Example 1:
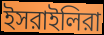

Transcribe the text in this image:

ইসরাইলিরা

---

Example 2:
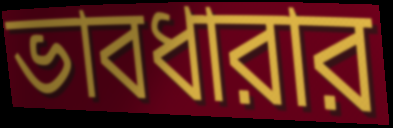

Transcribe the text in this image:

ভাবধারার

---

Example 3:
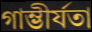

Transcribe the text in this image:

গাম্ভীর্যতা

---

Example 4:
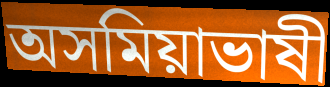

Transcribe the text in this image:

অসমিয়াভাষী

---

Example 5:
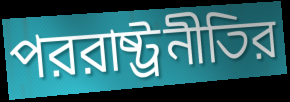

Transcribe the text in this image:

পররাষ্ট্রনীতির